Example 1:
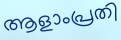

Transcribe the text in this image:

ആളാംപ്രതി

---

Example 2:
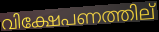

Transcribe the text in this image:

വിക്ഷേപണത്തില്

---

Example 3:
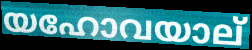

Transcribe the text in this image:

യഹോവയാല്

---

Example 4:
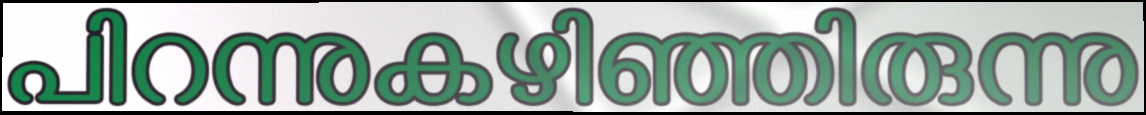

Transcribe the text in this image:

പിറന്നുകഴിഞ്ഞിരുന്നു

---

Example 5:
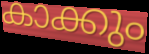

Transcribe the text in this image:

കാക്കും